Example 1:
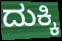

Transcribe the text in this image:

ದುಕ್ಕಿ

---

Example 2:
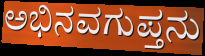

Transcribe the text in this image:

ಅಭಿನವಗುಪ್ತನು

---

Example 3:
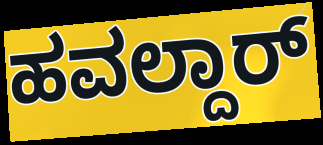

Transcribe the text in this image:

ಹವಲ್ದಾರ್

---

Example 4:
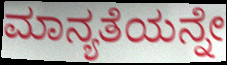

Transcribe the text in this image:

ಮಾನ್ಯತೆಯನ್ನೇ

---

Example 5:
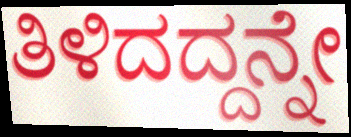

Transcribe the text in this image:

ತಿಳಿದದ್ದನ್ನೇ